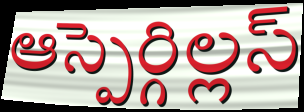
ఆస్పెర్గిల్లస్